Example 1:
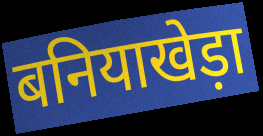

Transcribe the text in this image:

बनियाखेड़ा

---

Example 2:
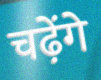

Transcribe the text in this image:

चढ़ेंगे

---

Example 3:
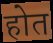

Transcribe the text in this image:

होत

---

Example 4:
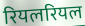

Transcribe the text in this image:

रियलरियल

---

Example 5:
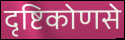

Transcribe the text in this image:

दृष्टिकोणसे